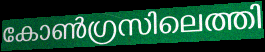
കോൺഗ്രസിലെത്തി